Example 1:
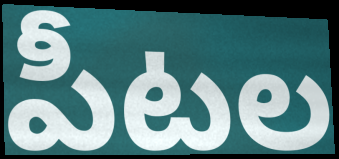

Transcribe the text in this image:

పీటల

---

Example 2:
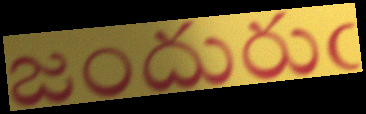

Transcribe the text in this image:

జందురుఁ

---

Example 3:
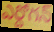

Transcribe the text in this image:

ఎర్దోగన్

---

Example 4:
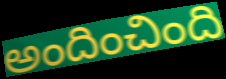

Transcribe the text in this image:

అందించింది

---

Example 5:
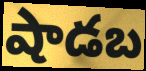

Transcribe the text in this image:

షాడబ